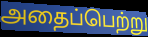
அதைப்பெற்று